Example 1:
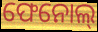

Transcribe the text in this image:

ଫେନୋଲ୍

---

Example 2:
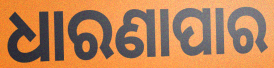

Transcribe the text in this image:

ଧାରଣାପାର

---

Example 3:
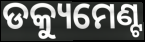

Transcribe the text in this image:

ଡକ୍ୟୁମେଣ୍ଟ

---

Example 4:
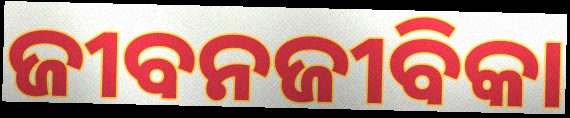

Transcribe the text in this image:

ଜୀବନଜୀବିକା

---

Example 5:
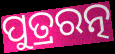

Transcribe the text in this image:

ପୁତ୍ରରତ୍ନ